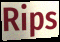
Rips